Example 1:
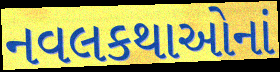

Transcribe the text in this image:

નવલકથાઓનાં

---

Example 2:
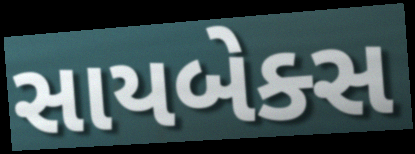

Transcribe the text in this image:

સાયબેક્સ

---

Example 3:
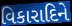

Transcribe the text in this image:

વિકારાદિને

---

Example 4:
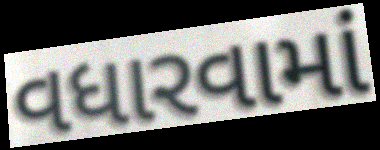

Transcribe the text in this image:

વધારવામાં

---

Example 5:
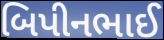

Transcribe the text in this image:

બિપીનભાઈ